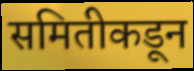
समितीकडून